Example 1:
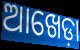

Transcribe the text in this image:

ଆଖେଡ଼ା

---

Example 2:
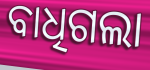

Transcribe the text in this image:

ବାଧିଗଲା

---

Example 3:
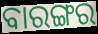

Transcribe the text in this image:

ବାରଙ୍ଗର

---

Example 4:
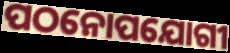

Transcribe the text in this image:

ପଠନୋପଯୋଗୀ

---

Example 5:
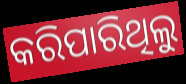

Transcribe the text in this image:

କରିପାରିଥିଲୁ